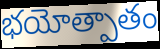
భయోత్పాతం